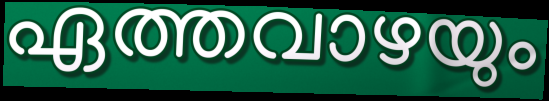
ഏത്തവാഴയും